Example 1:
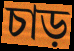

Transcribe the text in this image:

চাড়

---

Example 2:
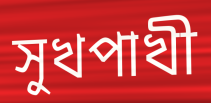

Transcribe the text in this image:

সুখপাখী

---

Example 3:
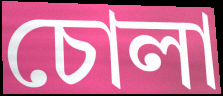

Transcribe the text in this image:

চোলা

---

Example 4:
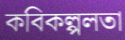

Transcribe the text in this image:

কবিকল্পলতা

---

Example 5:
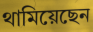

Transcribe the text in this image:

থামিয়েছেন